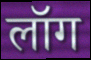
लॉग